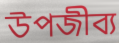
উপজীব্য